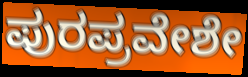
ಪುರಪ್ರವೇಶೇ